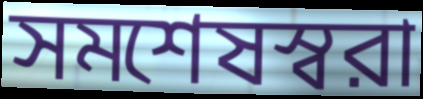
সমশেষস্বরা